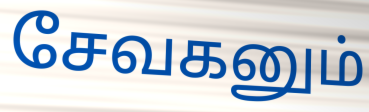
சேவகனும்